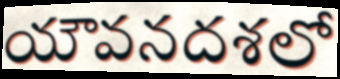
యౌవనదశలో